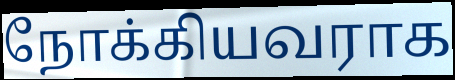
நோக்கியவராக